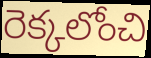
రెక్కలోంచి